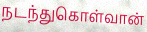
நடந்துகொள்வான்